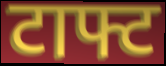
टाफ्ट